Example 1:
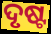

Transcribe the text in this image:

ଦୃଷ୍ଟ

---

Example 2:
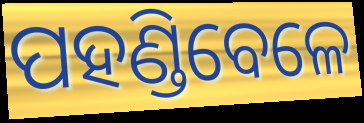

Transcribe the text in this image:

ପହଣ୍ଡିବେଳେ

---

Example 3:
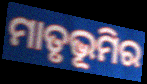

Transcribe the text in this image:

ମାତୃଭୂମିର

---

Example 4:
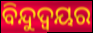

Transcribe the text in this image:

ବିନ୍ଦୁଦ୍ବୟର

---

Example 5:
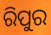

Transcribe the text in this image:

ରିପୁର